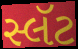
સ્લૅટ